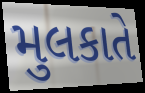
મુલકાતે